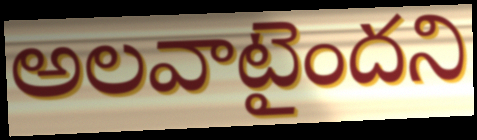
అలవాటైందని